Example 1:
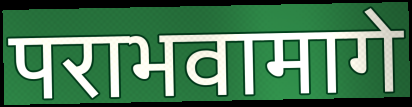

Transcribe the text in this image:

पराभवामागे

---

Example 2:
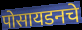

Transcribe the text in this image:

पोसायडनचे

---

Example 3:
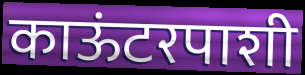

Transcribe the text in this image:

काऊंटरपाशी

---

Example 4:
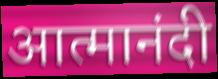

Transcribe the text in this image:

आत्मानंदी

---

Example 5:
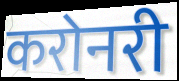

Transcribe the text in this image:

करोनरी